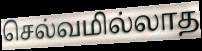
செல்வமில்லாத